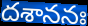
దశాననః